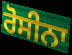
ਰੋਸੀਨਾ